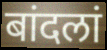
बांदलां